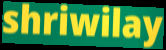
shriwilay